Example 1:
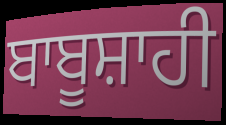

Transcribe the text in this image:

ਬਾਬੂਸ਼ਾਹੀ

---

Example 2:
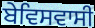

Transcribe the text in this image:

ਬੇਵਿਸਵਾਸੀ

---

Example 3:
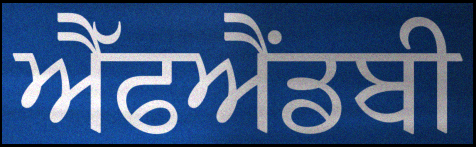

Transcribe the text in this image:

ਐੱਫਐਂਡਬੀ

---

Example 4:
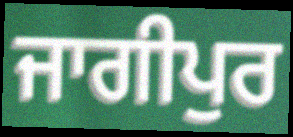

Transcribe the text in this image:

ਜਾਗੀਪੁਰ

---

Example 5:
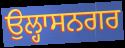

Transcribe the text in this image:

ਉਲ੍ਹਾਸਨਗਰ